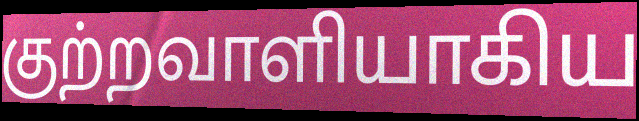
குற்றவாளியாகிய